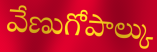
వేణుగోపాల్కు